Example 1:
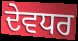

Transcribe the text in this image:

ਦੇਵਧਰ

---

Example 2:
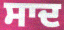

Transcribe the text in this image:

ਸਾਦ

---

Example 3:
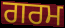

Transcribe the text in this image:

ਗਰਮ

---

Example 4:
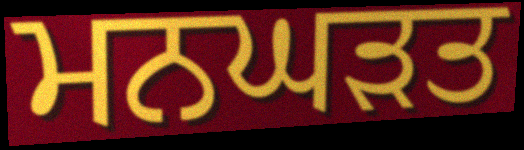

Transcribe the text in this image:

ਮਨਘੜਤ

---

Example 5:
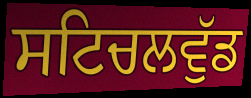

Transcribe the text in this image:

ਸਟਿਚਲਵੁੱਡ